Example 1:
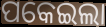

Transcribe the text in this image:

ପକେଇଲା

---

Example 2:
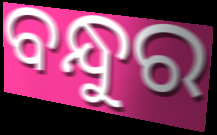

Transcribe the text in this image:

ବନ୍ଧୁର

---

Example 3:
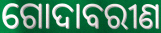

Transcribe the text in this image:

ଗୋଦାବରୀଣ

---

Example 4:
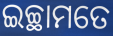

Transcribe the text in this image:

ଇଚ୍ଛାମତେ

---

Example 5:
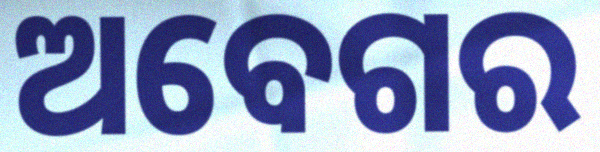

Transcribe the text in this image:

ଅବେଗର